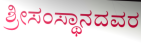
ಶ್ರೀಸಂಸ್ಥಾನದವರ